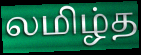
லமிழ்த